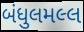
બંધુલમલ્લ